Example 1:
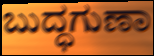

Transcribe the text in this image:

ಬುದ್ಧಗುಣಾ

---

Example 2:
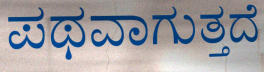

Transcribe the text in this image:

ಪಥವಾಗುತ್ತದೆ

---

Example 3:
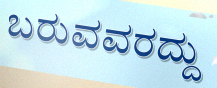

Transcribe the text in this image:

ಬರುವವರದ್ದು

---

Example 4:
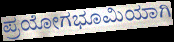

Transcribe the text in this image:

ಪ್ರಯೋಗಭೂಮಿಯಾಗಿ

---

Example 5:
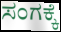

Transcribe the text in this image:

ಸಂಗಕ್ಕೆ